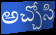
అచ్చోసి